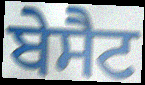
ਬੇਸੈਟ